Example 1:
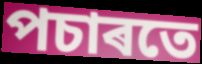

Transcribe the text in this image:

পচাৰতে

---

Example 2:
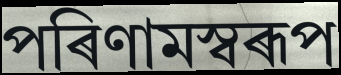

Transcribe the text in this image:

পৰিণামস্বৰূপ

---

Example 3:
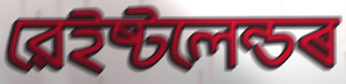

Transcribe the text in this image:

ৱেইষ্টলেন্ডৰ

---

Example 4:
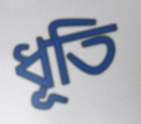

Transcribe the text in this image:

ধূতি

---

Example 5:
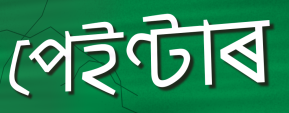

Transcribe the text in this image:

পেইণ্টাৰ